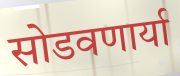
सोडवणार्या